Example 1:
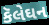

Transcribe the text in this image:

કૅલેઘન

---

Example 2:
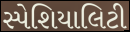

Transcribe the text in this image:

સ્પેશિયાલિટી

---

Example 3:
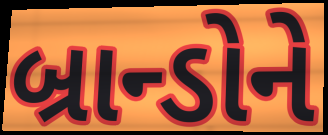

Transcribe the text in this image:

બ્રાન્ડોને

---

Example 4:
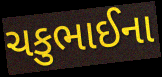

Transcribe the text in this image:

ચકુભાઈના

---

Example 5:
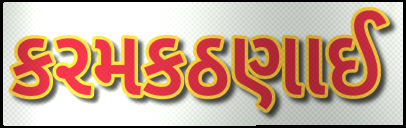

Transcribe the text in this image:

કરમકઠણાઈ